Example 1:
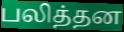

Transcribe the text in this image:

பலித்தன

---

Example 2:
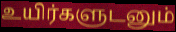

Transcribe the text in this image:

உயிர்களுடனும்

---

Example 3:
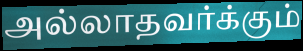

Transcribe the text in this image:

அல்லாதவர்க்கும்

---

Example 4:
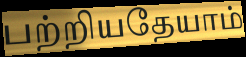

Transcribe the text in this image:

பற்றியதேயாம்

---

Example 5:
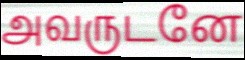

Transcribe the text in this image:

அவருடனே